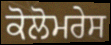
ਕੋਲੋਮਰੇਸ